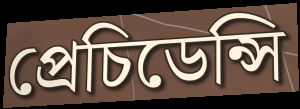
প্ৰেচিডেন্সি